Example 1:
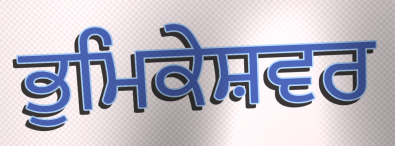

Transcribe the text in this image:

ਭੁਮਿਕੇਸ਼ਵਰ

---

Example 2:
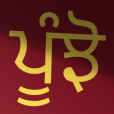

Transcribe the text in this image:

ਪੂੰਝੋ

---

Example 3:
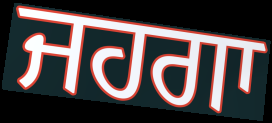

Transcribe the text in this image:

ਜਹਗਾ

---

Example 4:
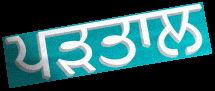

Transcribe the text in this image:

ਪੜਤਾਲ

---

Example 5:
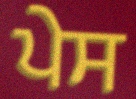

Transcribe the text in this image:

ਪੇਸ